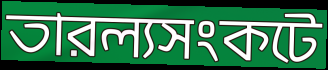
তারল্যসংকটে